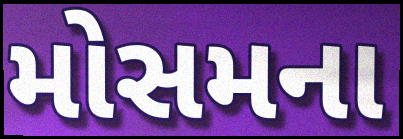
મોસમના